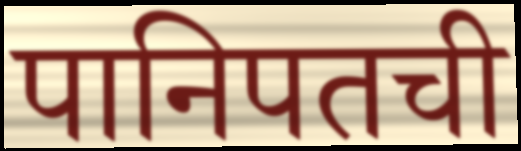
पानिपतची